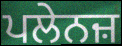
ਪਲੇਨਜ਼